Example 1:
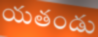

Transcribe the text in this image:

యతండు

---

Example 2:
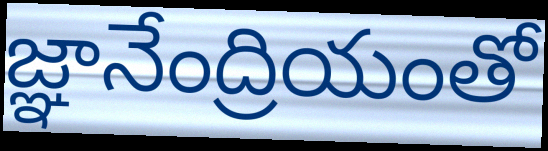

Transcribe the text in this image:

జ్ఞానేంద్రియంతో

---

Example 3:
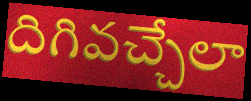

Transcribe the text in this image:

దిగివచ్చేలా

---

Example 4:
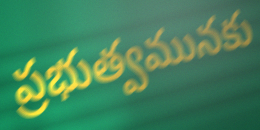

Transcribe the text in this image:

ప్రభుత్వమునకు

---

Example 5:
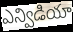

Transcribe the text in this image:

ఎన్విడియా